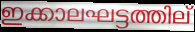
ഇക്കാലഘട്ടത്തില്